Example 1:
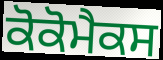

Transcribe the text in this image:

ਕੋਕੋਮੈਕਸ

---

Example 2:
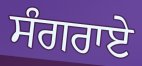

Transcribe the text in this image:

ਸੰਗਰਾਏ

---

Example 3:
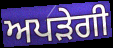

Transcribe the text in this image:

ਅਪੜੇਗੀ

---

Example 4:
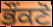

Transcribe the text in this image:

ਭੌਂਕਣੋ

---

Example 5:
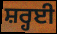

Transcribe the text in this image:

ਸ਼ਰ੍ਹਈ